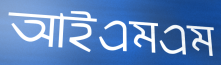
আইএমএম